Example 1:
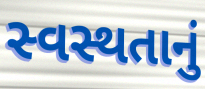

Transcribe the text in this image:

સ્વસ્થતાનું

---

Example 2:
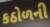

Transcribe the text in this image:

કઠોળની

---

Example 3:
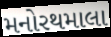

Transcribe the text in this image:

મનોરથમાલા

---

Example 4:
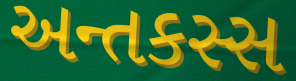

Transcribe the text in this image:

અન્તકસ્સ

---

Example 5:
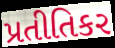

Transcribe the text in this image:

પ્રતીતિકર